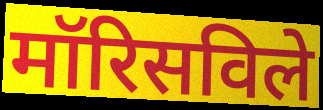
मॉरिसविले